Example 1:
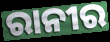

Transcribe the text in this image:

ରାନୀର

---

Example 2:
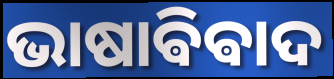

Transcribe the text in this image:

ଭାଷାଵିଵାଦ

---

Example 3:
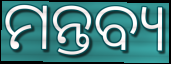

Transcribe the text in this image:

ମନ୍ତବ୍ୟ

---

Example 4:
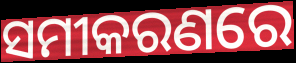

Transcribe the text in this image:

ସମୀକରଣରେ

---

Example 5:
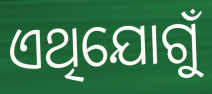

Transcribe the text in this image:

ଏଥିଯୋଗୁଁ